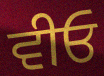
ਵੀਓ